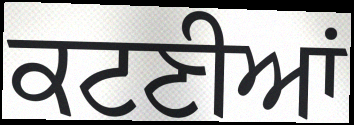
ਕਟਣੀਆਂ